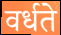
वर्धते